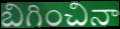
బిగించినా